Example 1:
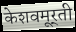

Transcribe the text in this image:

केशवमूर्ती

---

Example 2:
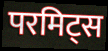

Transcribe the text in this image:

परमिट्स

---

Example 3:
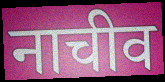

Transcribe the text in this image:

नाचीव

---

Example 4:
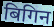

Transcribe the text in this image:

बिगिन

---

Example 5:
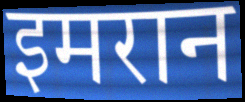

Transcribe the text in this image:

इमरान